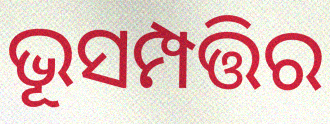
ଭୂସମ୍ପତ୍ତିର